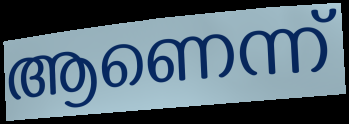
ആണെന്ന്